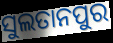
ସୁଲତାନପୁର